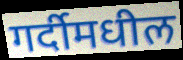
गर्दीमधील